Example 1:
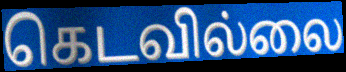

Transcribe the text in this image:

கெடவில்லை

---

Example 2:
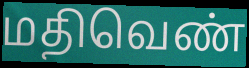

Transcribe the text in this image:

மதிவெண்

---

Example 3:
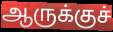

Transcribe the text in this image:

ஆருக்குச்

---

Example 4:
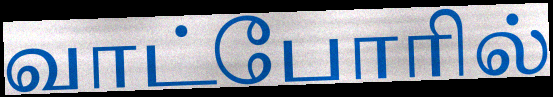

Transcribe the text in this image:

வாட்போரில்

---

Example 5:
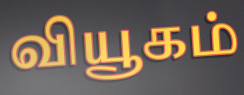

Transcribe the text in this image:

வியூகம்